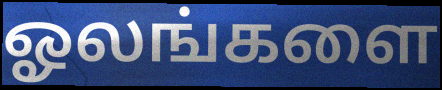
ஓலங்களை